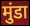
मुंडा